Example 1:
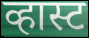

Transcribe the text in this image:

व्हास्ट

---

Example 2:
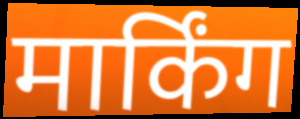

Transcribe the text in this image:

मार्किंग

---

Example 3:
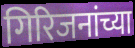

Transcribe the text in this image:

गिरिजनांच्या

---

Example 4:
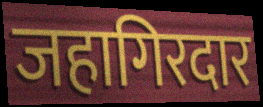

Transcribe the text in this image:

जहागिरदार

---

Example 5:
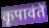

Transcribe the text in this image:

कृपावंतें